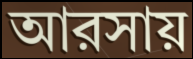
আরসায়